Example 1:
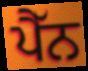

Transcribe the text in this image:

ਪੈੱਨ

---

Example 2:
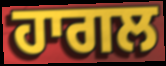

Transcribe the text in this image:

ਹਾਗਲ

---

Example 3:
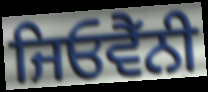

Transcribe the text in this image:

ਜਿਓਵੈਂਨੀ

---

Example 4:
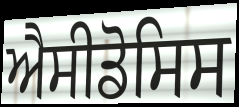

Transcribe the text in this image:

ਐਸੀਡੋਸਿਸ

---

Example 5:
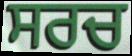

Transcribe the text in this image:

ਸਰਚ